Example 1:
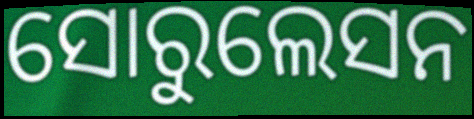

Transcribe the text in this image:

ସୋରୁଲେସନ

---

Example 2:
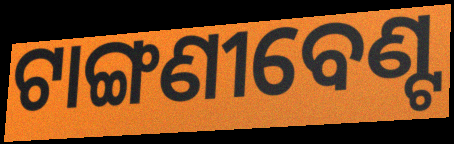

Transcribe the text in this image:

ଟାଙ୍ଗଣୀବେଣ୍ଟ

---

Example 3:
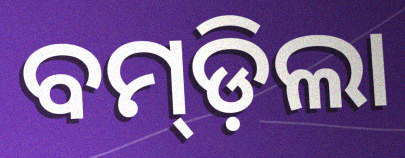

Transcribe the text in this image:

ବମ୍‍ଡ଼ିଲା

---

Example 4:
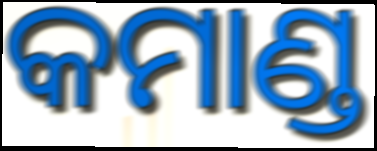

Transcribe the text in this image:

କମାଣ୍ଡ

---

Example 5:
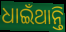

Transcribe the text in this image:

ଧାଇଁଥାନ୍ତି